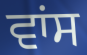
ਵਾਂਸ